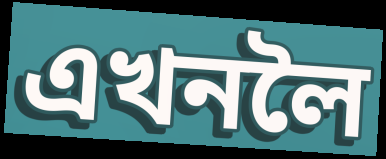
এখনলৈ